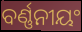
ବର୍ଣ୍ଣନୀୟଂ